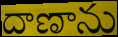
దాణాను